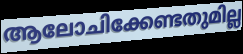
ആലോചിക്കേണ്ടതുമില്ല